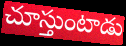
చూస్తుంటాడు